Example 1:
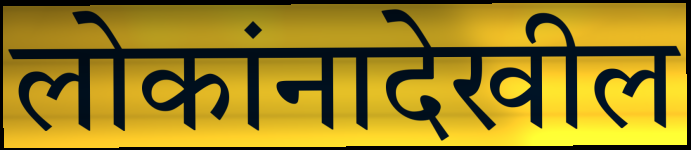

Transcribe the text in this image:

लोकांनादेखील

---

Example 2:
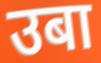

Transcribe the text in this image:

उबा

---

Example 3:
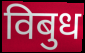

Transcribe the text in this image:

विबुध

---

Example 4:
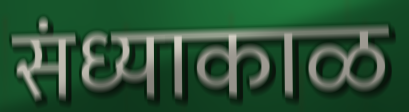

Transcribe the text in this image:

संध्याकाळ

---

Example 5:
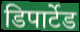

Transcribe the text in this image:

डिपार्टेड